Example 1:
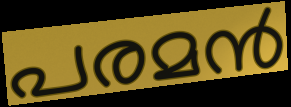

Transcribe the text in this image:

പരമൻ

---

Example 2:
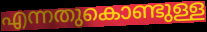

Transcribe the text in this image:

എന്നതുകൊണ്ടുള്ള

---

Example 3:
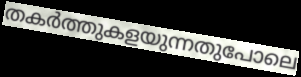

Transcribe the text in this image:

തകർത്തുകളയുന്നതുപോലെ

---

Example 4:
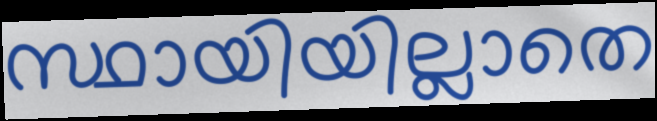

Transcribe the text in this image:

സ്ഥായിയില്ലാതെ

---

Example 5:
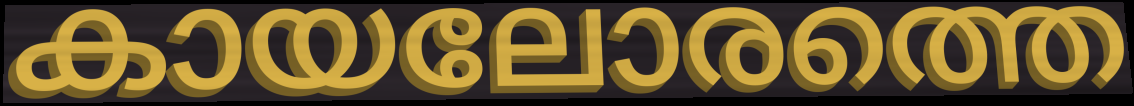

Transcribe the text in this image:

കായലോരത്തെ